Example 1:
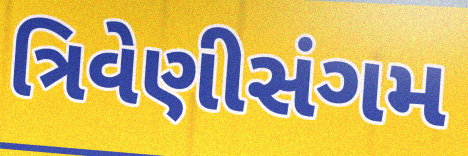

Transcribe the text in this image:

ત્રિવેણીસંગમ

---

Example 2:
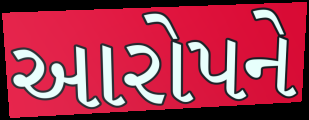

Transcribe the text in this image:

આરોપને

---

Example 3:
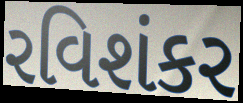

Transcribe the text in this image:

રવિશંકર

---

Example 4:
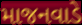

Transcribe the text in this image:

માજનવાડે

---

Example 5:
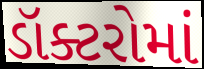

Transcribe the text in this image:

ડૉક્ટરોમાં